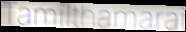
Tamilthamarai